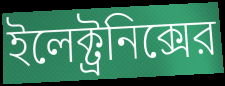
ইলেক্ট্রনিক্সের